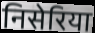
निसेरिया